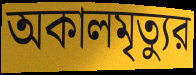
অকালমৃত্যুর